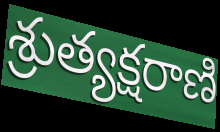
శ్రుత్యక్షరాణి